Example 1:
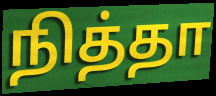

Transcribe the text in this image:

நித்தா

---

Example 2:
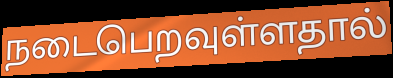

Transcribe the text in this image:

நடைபெறவுள்ளதால்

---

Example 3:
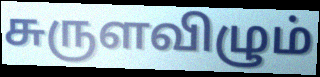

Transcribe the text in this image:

சுருளவிழும்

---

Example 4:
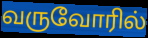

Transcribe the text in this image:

வருவோரில்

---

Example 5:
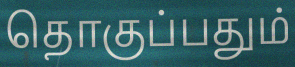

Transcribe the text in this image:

தொகுப்பதும்